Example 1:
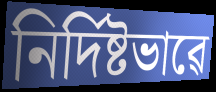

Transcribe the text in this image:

নিৰ্দিষ্টভাৱে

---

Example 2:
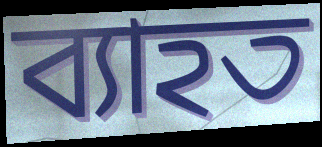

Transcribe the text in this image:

ব্যাহত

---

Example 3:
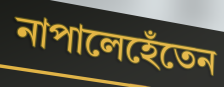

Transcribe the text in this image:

নাপালেহেঁতেন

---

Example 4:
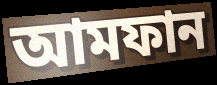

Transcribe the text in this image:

আমফান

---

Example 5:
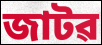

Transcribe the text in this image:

জাটৱ